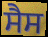
ਸੈਸ